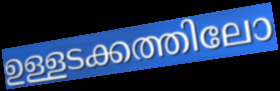
ഉള്ളടക്കത്തിലോ